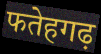
फतेहगढ़